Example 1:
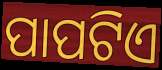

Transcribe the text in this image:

ପାପଟିଏ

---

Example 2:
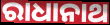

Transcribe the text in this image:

ରାଧାନାଥ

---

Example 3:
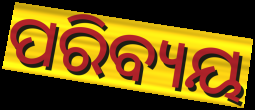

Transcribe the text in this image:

ପରିବ୍ୟୟ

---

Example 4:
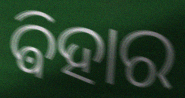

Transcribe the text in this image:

ଵିହାର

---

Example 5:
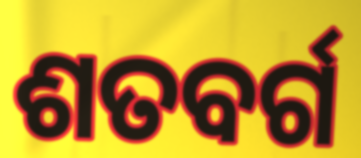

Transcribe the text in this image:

ଶତବର୍ଗ